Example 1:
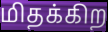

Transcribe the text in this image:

மிதக்கிற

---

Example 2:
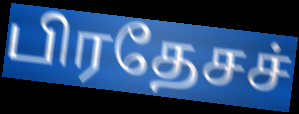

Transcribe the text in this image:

பிரதேசச்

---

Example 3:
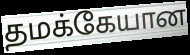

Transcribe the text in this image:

தமக்கேயான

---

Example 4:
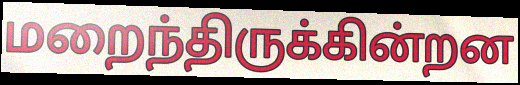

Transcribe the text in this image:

மறைந்திருக்கின்றன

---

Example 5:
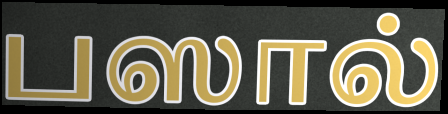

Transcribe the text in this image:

பஸால்